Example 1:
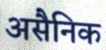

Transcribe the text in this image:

असैनिक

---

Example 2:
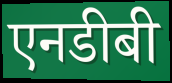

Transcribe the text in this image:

एनडीबी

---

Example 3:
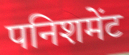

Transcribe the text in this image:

पनिशमेंट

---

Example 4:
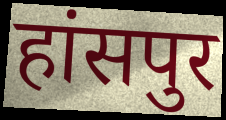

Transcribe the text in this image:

हांसपुर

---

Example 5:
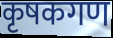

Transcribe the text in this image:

कृषकगण